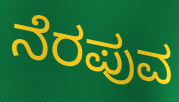
ನೆರಪುವ